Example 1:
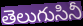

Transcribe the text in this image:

తెలుగుసినీ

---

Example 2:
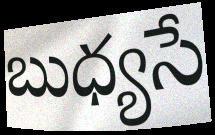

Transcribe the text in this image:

బుధ్యసే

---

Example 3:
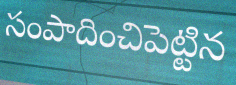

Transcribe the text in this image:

సంపాదించిపెట్టిన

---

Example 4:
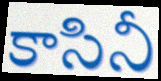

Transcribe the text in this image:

కాసినీ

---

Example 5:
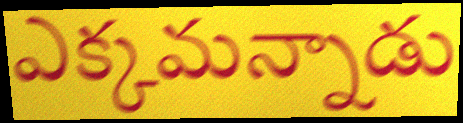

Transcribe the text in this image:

ఎక్కమన్నాడు